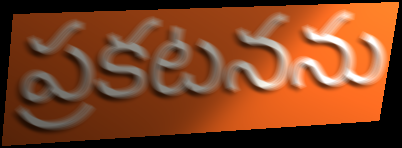
ప్రకటనను